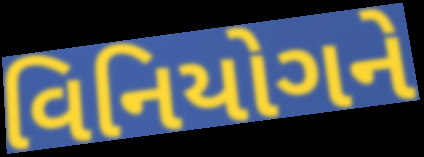
વિનિયોગને